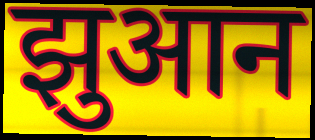
झुआन